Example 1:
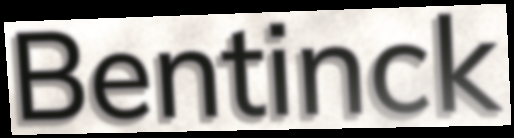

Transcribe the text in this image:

Bentinck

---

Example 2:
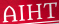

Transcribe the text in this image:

AIHT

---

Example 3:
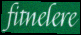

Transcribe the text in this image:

fitnelere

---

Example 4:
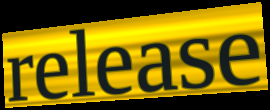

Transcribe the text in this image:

release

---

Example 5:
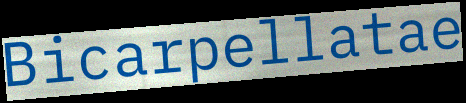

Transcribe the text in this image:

Bicarpellatae